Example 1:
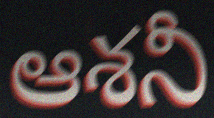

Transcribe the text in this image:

ఆశనీ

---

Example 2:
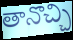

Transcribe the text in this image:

తానొచ్చి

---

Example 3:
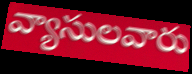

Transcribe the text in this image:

వ్యాసులవారు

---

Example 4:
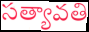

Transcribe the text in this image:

సత్యావతి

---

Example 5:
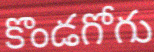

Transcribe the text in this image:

కొండగోగు